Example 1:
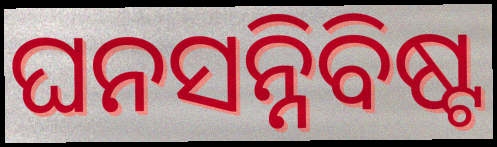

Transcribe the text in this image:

ଘନସନ୍ନିବିଷ୍ଟ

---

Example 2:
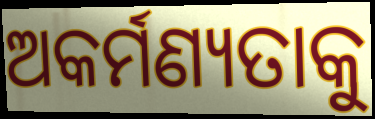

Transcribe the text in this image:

ଅକର୍ମଣ୍ୟତାକୁ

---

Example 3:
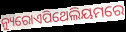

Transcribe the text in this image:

ନ୍ୟୁରୋଏପିଥେଲିୟମରେ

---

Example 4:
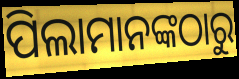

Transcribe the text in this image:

ପିଲାମାନଙ୍କଠାରୁ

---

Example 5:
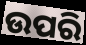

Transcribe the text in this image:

ଉପରି